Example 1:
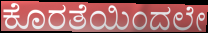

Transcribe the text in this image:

ಕೊರತೆಯಿಂದಲೇ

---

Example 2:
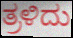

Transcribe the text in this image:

ತ್ರಳಿದು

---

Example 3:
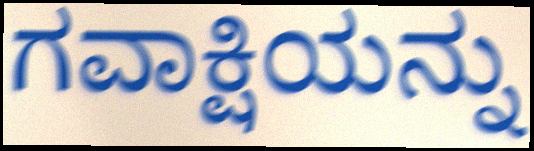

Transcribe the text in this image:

ಗವಾಕ್ಷಿಯನ್ನು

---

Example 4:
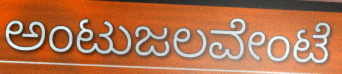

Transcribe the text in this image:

ಅಂಟುಜಲವೇಂಟೆ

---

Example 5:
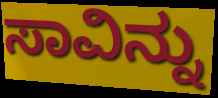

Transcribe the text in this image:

ಸಾವಿನ್ನು